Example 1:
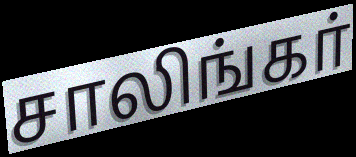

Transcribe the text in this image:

சாலிங்கர்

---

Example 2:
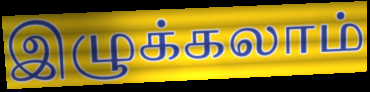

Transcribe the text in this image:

இழுக்கலாம்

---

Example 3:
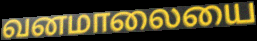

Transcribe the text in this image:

வனமாலையை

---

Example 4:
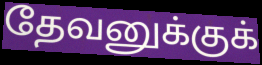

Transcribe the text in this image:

தேவனுக்குக்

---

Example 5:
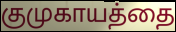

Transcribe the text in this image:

குமுகாயத்தை